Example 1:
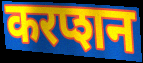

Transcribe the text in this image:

करप्शन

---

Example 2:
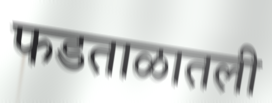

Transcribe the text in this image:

फडताळातली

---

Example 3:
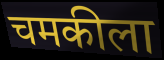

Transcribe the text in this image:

चमकीला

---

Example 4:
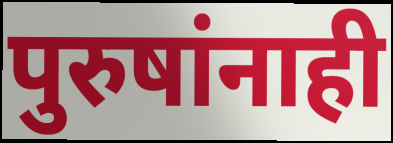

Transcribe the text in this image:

पुरुषांनाही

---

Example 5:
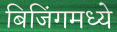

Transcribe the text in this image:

बिजिंगमध्ये